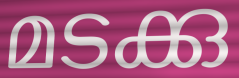
മടക്കു